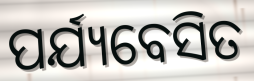
ପର୍ଯ୍ୟବେସିତ